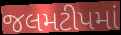
જલમટીપમાં